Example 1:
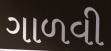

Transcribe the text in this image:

ગાળવી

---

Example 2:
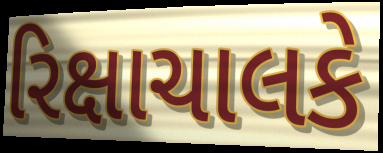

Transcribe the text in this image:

રિક્ષાચાલકે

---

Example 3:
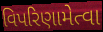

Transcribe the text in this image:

વિપરિણામેત્વા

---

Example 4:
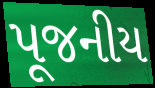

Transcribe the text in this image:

પૂજનીય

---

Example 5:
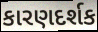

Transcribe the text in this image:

કારણદર્શક